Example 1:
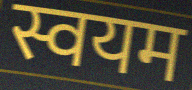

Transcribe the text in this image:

स्वयम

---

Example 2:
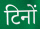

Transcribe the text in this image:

टिनों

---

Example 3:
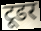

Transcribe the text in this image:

टूडर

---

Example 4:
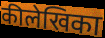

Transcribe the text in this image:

कीलेखिका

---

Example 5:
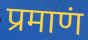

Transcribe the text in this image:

प्रमाणं